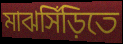
মাঝসিঁড়িতে